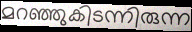
മറഞ്ഞുകിടന്നിരുന്ന